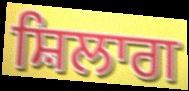
ਸ਼ਿਲਾਗ